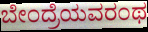
ಬೇಂದ್ರೆಯವರಂಥ